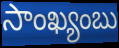
సాంఖ్యంబు